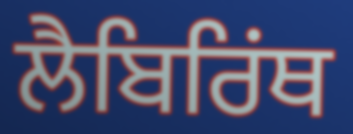
ਲੈਬਿਰਿਂਥ